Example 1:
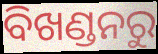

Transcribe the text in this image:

ବିଖଣ୍ଡନରୁ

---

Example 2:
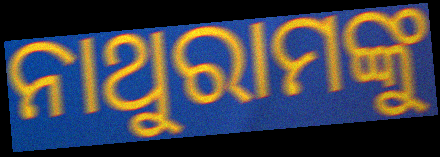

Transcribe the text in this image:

ନାଥୁରାମଙ୍କୁ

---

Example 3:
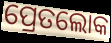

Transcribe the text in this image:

ପ୍ରେତଲୋକ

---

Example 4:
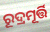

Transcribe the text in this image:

ରୂଦ୍ରମୂର୍ତ୍ତି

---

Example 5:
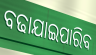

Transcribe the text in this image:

ବଢାଯାଇପାରିବ